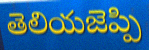
తెలియజెప్పి